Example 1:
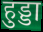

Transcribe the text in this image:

हुड्डा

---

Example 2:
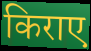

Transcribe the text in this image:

किराए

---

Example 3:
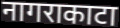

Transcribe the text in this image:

नागराकाटा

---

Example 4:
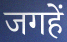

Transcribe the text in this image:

जगहें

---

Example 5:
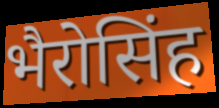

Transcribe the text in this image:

भैरोसिंह